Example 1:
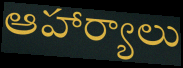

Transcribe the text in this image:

ఆహార్యాలు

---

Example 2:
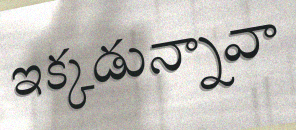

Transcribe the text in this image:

ఇక్కడున్నావా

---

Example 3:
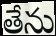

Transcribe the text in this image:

తేను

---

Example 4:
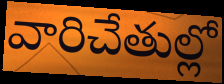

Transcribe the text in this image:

వారిచేతుల్లో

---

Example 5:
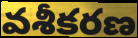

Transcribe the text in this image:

వశీకరణ